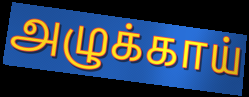
அழுக்காய்